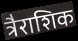
त्रैराशिक